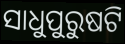
ସାଧୁପୁରୁଷଟି